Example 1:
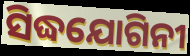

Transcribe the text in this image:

ସିଦ୍ଧଯୋଗିନୀ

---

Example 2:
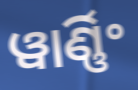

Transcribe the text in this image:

ୱାର୍ଣ୍ଣିଂ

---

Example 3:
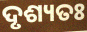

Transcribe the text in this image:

ଦୃଶ୍ୟତଃ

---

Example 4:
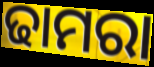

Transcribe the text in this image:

ଢାମରା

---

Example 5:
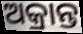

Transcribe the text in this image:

ଅକ୍ରାନ୍ତ